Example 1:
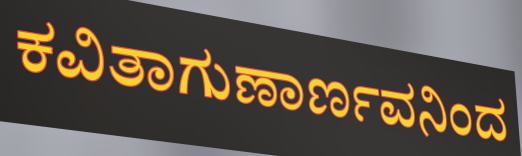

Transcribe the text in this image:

ಕವಿತಾಗುಣಾರ್ಣವನಿಂದ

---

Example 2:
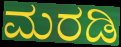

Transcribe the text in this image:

ಮರಡಿ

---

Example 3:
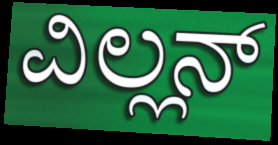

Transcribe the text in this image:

ವಿಲ್ಲನ್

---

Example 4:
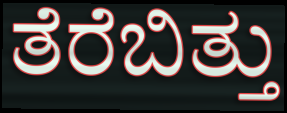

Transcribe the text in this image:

ತೆರೆಬಿತ್ತು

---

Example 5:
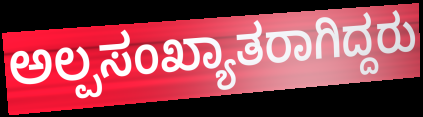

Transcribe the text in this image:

ಅಲ್ಪಸಂಖ್ಯಾತರಾಗಿದ್ದರು